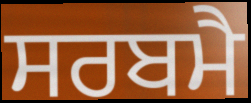
ਸਰਬਮੈ